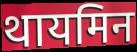
थायमिन